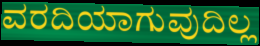
ವರದಿಯಾಗುವುದಿಲ್ಲ